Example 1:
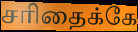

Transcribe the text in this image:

சரிதைக்கே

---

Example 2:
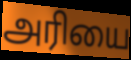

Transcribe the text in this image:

அரியை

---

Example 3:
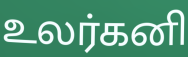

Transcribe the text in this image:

உலர்கனி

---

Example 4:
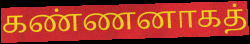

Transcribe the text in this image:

கண்ணனாகத்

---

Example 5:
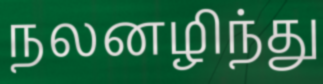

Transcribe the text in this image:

நலனழிந்து